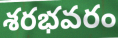
శరభవరం